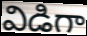
విడిగా